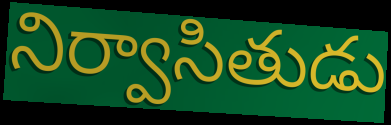
నిర్వాసితుడు